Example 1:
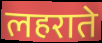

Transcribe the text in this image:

लहराते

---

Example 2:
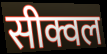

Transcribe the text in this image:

सीक्वल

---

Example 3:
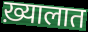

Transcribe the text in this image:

ख़्यालात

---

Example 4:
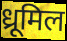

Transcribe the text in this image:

ध्रूमिल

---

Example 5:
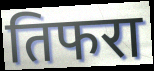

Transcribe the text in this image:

तिफरा